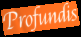
Profundis